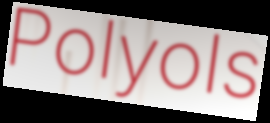
Polyols